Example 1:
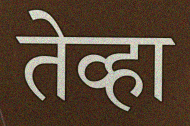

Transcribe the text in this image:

तेव्हा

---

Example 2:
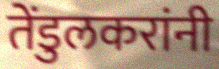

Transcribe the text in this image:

तेंडुलकरांनी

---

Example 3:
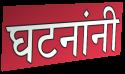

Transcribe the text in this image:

घटनांनी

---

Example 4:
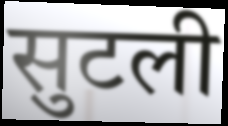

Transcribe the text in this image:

सुटली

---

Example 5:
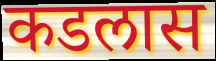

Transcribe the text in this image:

कडलास